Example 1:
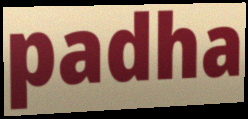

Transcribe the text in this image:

padha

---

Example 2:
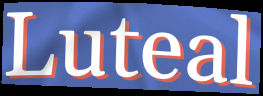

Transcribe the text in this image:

Luteal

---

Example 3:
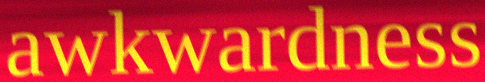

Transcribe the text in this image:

awkwardness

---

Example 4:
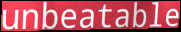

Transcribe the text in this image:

unbeatable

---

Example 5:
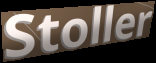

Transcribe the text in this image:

Stoller